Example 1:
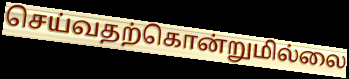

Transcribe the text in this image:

செய்வதற்கொன்றுமில்லை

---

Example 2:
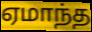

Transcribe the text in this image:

ஏமாந்த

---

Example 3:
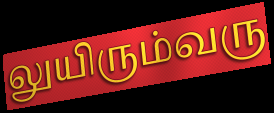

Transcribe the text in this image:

லுயிரும்வரு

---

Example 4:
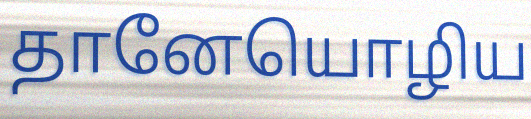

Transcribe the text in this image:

தானேயொழிய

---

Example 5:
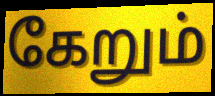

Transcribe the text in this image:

கேறும்